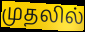
முதலில்